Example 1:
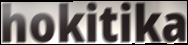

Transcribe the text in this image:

hokitika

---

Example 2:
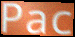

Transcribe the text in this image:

Pac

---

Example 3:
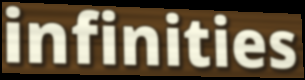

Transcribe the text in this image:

infinities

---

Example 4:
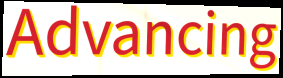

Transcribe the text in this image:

Advancing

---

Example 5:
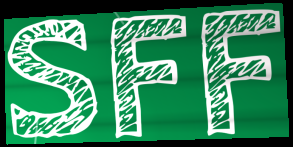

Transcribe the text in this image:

SFF